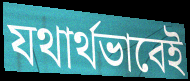
যথার্থভাবেই